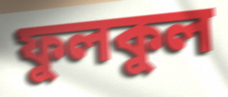
ফুলকুল